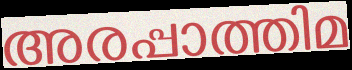
അരപ്പാത്തിമ